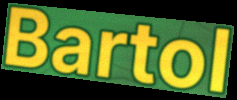
Bartol